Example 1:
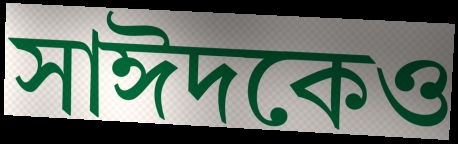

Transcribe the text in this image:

সাঈদকেও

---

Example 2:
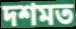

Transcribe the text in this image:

দশমত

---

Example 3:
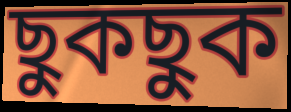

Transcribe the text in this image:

ছুকছুক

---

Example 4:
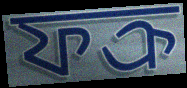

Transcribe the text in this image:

ফক্র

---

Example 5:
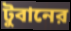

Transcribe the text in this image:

টুবানের